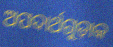
ଅପଦାର୍ଥଗୁଡ଼ାକ